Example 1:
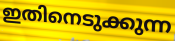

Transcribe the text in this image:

ഇതിനെടുക്കുന്ന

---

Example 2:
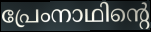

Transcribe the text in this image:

പ്രേംനാഥിന്റെ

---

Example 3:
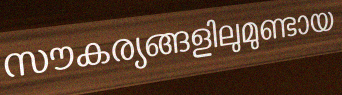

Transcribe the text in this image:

സൗകര്യങ്ങളിലുമുണ്ടായ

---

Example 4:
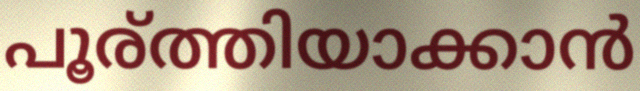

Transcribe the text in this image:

പൂര്ത്തിയാക്കാൻ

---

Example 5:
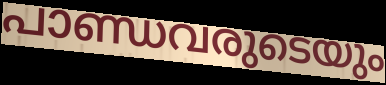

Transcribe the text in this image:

പാണ്ഡവരുടെയും